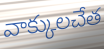
వాక్కులచేత